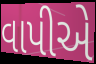
વાપીએ